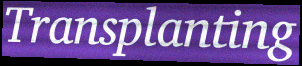
Transplanting